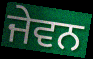
ਜੇਵਨ